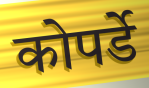
कोपर्डे